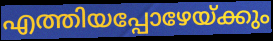
എത്തിയപ്പോഴേയ്ക്കും